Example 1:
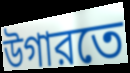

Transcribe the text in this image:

উগারতে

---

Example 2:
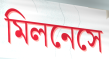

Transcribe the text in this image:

মিলনেসে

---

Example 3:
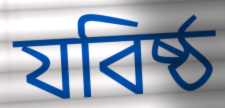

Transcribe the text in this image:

যবিষ্ঠ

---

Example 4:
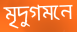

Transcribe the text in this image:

মৃদুগমনে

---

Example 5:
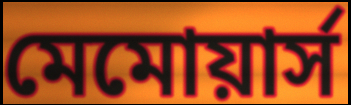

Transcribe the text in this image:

মেমোয়ার্স